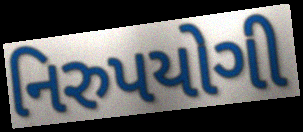
નિરુપયોગી